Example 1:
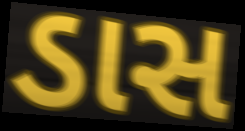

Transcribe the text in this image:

ડાસ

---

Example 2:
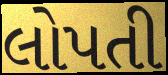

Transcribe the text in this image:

લોપતી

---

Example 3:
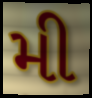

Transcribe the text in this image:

મી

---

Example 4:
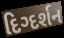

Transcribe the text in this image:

દિગ્દર્શન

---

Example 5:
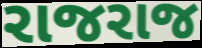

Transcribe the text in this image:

રાજરાજ